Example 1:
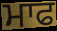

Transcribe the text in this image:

ਮਾਫ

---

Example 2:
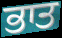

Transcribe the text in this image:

ਭਾਤ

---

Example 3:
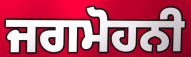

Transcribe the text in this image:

ਜਗਮੋਹਨੀ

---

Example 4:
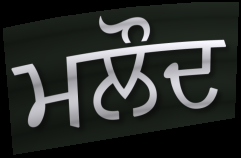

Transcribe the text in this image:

ਮਲੌਦ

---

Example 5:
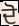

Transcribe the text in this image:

ਦੋ